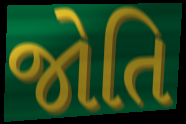
જોતિ